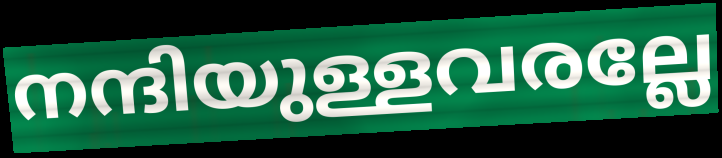
നന്ദിയുള്ളവരല്ലേ